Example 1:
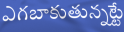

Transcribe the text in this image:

ఎగబాకుతున్నట్టే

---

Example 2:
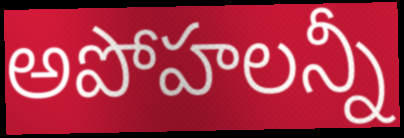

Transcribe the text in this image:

అపోహలన్నీ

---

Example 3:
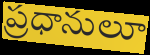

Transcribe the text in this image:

ప్రధానులూ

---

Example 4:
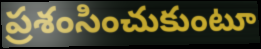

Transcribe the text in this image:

ప్రశంసించుకుంటూ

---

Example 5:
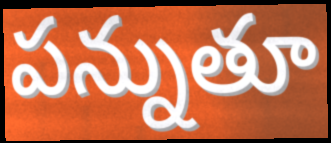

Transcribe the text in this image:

పన్నుతూ